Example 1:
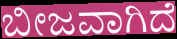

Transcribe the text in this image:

ಬೀಜವಾಗಿದೆ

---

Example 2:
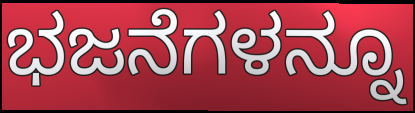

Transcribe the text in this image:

ಭಜನೆಗಳನ್ನೂ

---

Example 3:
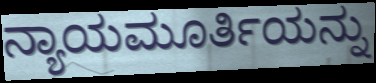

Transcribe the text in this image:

ನ್ಯಾಯಮೂರ್ತಿಯನ್ನು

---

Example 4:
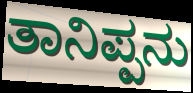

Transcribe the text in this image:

ತಾನಿಪ್ಪನು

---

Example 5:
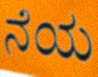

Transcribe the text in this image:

ನೆಯ